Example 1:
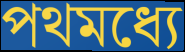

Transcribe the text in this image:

পথমধ্যে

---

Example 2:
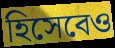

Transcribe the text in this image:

হিসেবেও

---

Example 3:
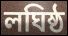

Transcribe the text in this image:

লঘিষ্ঠ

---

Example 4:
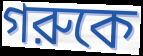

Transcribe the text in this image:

গরুকে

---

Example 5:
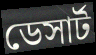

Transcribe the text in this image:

ডেসার্ট